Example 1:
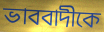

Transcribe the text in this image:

ভাববাদীকে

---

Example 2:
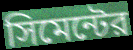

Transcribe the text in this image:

সিমেন্টের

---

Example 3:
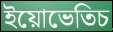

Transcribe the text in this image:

ইয়োভেতিচ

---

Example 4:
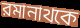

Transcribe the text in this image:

রমানাথকে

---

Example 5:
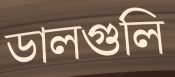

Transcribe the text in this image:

ডালগুলি